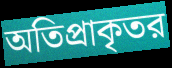
অতিপ্রাকৃতর